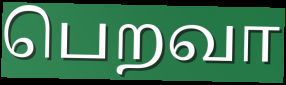
பெறவா